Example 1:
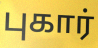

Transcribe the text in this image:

புகார்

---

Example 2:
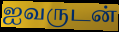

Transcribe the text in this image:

ஐவருடன்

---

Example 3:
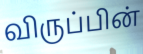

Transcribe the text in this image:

விருப்பின்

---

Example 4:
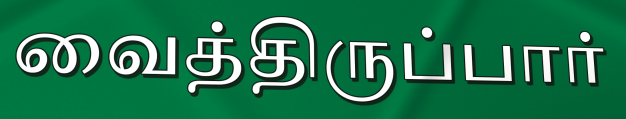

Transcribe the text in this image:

வைத்திருப்பார்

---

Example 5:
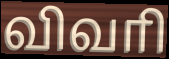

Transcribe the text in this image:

விவரி